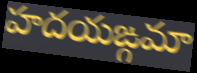
హదయఙ్గమా